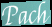
Pach